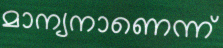
മാന്യനാണെന്ന്